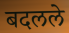
बदलले